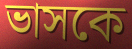
ভাসকে